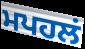
ਮਪਹਲਂ